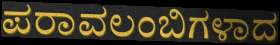
ಪರಾವಲಂಬಿಗಳಾದ